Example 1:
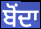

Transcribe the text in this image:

ਬੋੰਦਾ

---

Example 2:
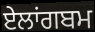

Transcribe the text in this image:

ਏਲਾਂਗਬਮ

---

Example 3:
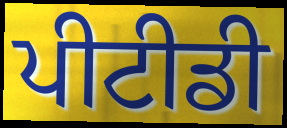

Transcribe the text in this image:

ਪੀਟੀਡੀ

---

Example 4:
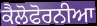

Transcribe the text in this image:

ਕੈਲੋਫੋਰਨੀਆ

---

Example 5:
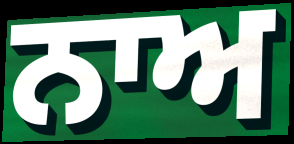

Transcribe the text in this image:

ਨਾਅ